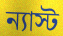
ন্যাস্ট